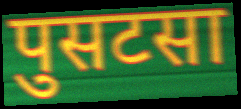
पुसटसा